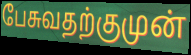
பேசுவதற்குமுன்